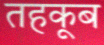
तहकूब